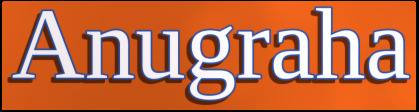
Anugraha